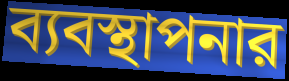
ব্যবস্থাপনার